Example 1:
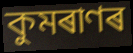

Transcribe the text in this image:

কুমৰাণৰ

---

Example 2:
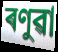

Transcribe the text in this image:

ৰণুৱা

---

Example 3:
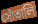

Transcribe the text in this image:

সোঁতালি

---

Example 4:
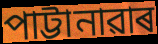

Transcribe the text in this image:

পাট্টানাৱাৰ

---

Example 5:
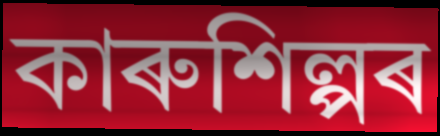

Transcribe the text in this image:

কাৰুশিল্পৰ